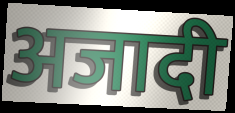
अजादी